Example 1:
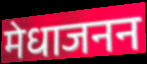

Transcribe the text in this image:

मेधाजनन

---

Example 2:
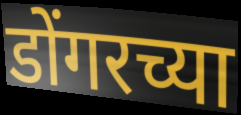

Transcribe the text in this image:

डोंगरच्या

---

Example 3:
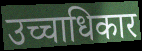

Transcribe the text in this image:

उच्चाधिकार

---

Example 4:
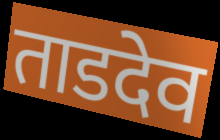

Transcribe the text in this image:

ताडदेव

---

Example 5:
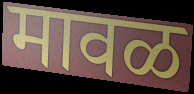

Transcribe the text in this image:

मावळ